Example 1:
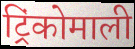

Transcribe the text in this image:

ट्रिंकोमाली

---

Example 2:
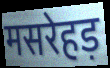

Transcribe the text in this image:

मसरेहड़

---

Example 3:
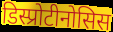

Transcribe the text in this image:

डिस्प्रोटीनोसिस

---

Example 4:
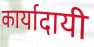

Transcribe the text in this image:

कार्यादायी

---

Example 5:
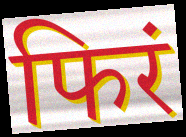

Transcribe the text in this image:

फिरं